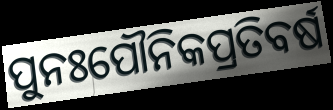
ପୁନଃପୌନିକପ୍ରତିବର୍ଷ